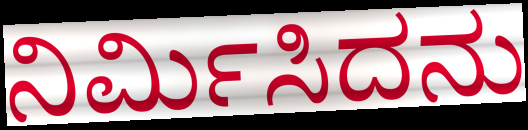
ನಿರ್ಮಿಸಿದನು